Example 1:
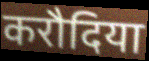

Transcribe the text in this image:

करौदिया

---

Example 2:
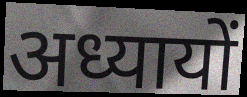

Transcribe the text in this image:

अध्यायों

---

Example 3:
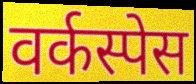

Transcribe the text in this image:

वर्कस्पेस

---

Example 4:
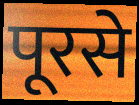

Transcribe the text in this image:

पूरसे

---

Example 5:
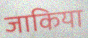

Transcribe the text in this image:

जाकिया